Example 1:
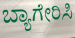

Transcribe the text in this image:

ಬ್ಯಾಗೇರಿಸಿ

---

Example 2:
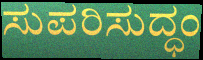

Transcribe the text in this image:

ಸುಪರಿಸುದ್ಧಂ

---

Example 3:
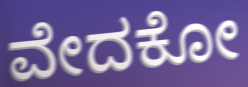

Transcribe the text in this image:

ವೇದಕೋ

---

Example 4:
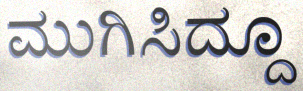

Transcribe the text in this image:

ಮುಗಿಸಿದ್ದೂ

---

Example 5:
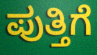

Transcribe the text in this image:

ಪುತ್ತಿಗೆ